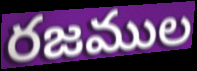
రజముల